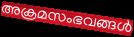
അക്രമസംഭവങ്ങൾ